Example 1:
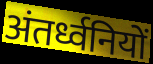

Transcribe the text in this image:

अंतर्ध्वनियों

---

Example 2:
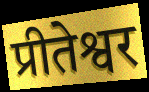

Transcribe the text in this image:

प्रीतेश्वर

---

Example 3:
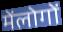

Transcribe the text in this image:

मेंलोगों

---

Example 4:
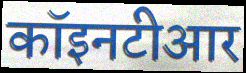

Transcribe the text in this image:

कॉइनटीआर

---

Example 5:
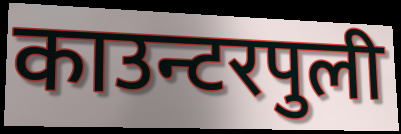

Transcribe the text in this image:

काउन्टरपुली